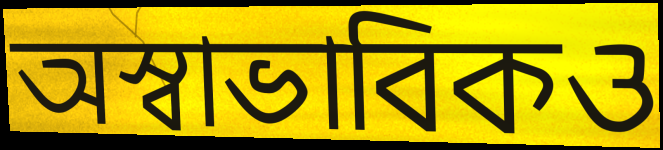
অস্বাভাবিকও